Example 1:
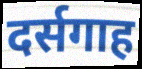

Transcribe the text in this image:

दर्सगाह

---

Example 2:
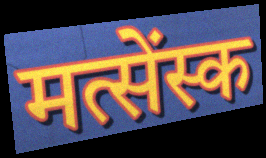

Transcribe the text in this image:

मत्सेंस्क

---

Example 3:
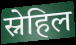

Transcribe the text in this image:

स्नेहिल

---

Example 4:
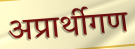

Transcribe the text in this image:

अप्रार्थीगण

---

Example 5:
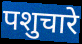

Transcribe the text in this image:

पशुचारे